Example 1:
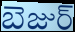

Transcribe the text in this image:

బెజుర్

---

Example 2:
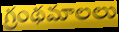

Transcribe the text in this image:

గ్రంథమాలలు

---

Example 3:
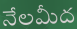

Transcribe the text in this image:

నేలమీద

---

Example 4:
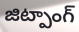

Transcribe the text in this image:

జిట్పాంగ్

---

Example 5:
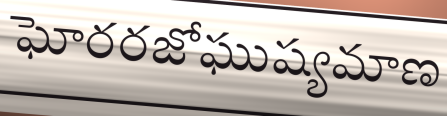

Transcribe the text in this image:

ఘోరరజోఘుష్యమాణ